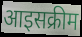
आइसक्रीम